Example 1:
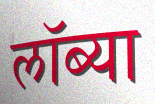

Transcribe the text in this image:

लॉब्या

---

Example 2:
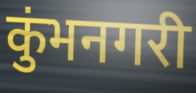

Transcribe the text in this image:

कुंभनगरी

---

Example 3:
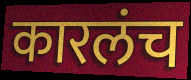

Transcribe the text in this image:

कारलंच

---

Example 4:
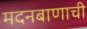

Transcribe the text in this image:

मदनबाणाची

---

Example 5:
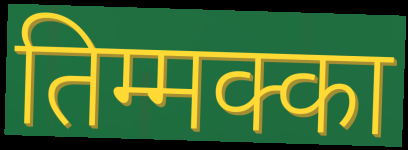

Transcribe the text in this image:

तिम्मक्का